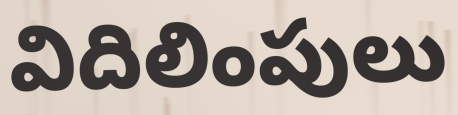
విదిలింపులు